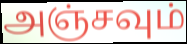
அஞ்சவும்